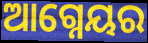
ଆଗ୍ନେୟର